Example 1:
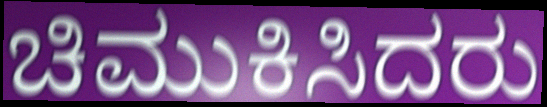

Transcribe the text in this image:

ಚಿಮುಕಿಸಿದರು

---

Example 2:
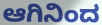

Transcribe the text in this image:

ಆಗಿನಿಂದ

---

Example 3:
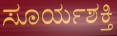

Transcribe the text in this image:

ಸೂರ್ಯಶಕ್ತಿ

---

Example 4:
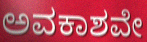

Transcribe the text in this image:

ಅವಕಾಶವೇ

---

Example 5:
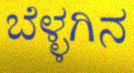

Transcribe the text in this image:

ಬೆಳ್ಳಗಿನ